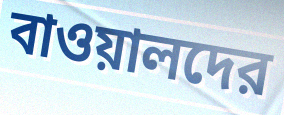
বাওয়ালদের